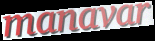
manavar